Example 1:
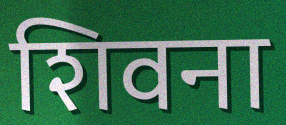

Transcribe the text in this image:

शिवना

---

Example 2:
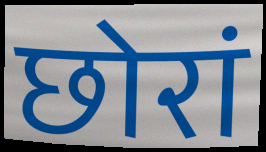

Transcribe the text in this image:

छोरां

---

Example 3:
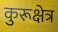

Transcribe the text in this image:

कुरूक्षेत्र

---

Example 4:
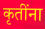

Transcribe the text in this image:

कृतींना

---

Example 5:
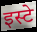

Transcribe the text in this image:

इस्टे